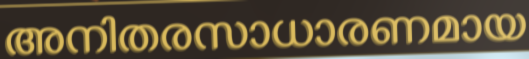
അനിതരസാധാരണമായ